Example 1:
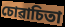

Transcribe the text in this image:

চোৱাচিতা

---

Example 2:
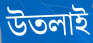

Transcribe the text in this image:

উতলাই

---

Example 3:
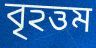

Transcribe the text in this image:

বৃহত্তম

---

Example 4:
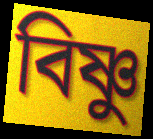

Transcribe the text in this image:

বিষ্ণু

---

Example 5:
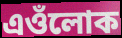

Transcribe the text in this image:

এওঁলোক